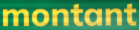
montant